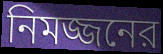
নিমজ্জনের